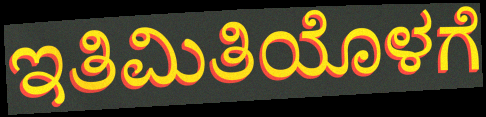
ಇತಿಮಿತಿಯೊಳಗೆ